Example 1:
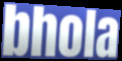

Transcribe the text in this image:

bhola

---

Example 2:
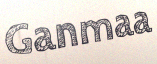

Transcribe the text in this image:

Ganmaa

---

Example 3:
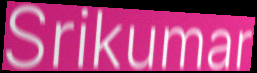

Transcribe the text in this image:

Srikumar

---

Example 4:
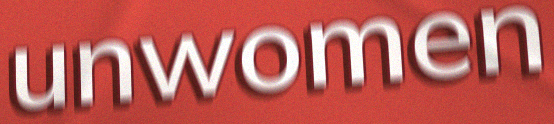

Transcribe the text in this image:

unwomen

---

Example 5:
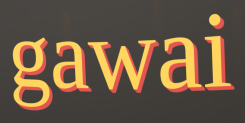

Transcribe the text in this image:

gawai